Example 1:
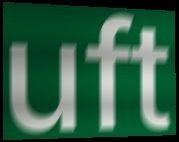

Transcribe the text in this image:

uft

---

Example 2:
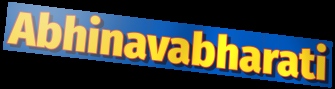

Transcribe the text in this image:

Abhinavabharati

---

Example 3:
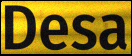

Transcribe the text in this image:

Desa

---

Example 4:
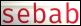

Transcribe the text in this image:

sebab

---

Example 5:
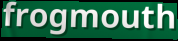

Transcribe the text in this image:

frogmouth